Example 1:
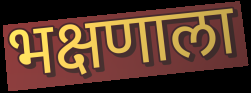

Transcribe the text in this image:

भक्षणाला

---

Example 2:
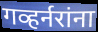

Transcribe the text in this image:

गव्हर्नरांना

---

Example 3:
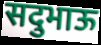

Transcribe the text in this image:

सदुभाऊ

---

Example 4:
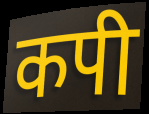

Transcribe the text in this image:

कपी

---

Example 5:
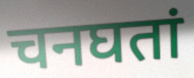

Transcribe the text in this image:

चनघतां